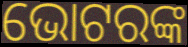
ଭୋଟରଙ୍କ